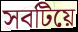
সবটিয়ে